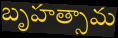
బృహత్సామ